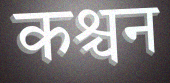
कश्चन